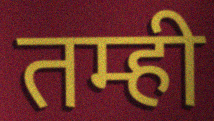
तम्ही